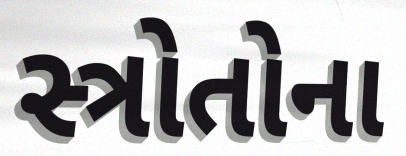
સ્ત્રોતોના